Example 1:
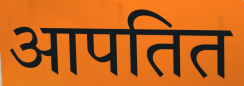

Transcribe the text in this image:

आपतित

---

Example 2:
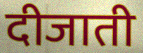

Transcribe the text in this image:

दीजाती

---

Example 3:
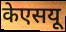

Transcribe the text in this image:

केएसयू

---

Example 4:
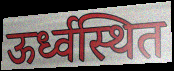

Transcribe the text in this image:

ऊर्ध्वस्थित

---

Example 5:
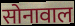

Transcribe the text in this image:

सोनावाल